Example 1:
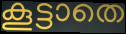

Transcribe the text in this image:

കൂട്ടാതെ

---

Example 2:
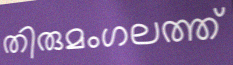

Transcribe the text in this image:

തിരുമംഗലത്ത്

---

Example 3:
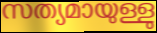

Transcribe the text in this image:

സത്യമായുള്ളു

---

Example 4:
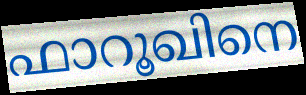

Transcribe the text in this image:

ഫാറൂഖിനെ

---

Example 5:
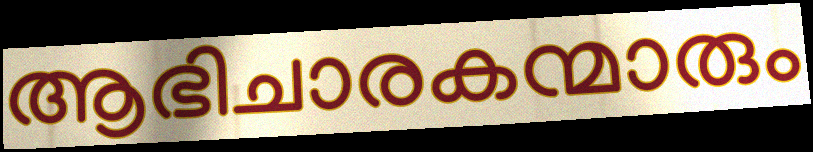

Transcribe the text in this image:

ആഭിചാരകന്മാരും